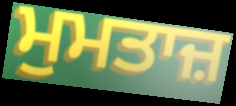
ਮੁਮਤਾਜ਼